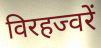
विरहज्वरें